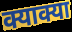
क्याक्या